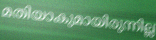
മതിയാകുമായിരുന്നില്ല